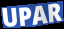
UPAR